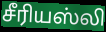
சீரியஸ்லி